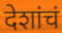
देशांचं